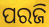
ପରଜି